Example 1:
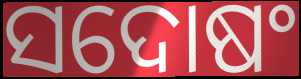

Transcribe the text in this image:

ସଦୋଷଂ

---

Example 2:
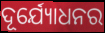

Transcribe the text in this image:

ଦୂର୍ଯ୍ୟୋଧନର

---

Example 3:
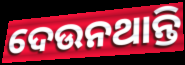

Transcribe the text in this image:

ଦେଉନଥାନ୍ତି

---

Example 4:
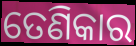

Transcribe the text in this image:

ତେଣିକାର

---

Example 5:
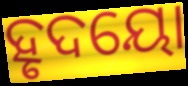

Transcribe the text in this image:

ହୃଦୟୋ